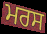
ਮਰਸ